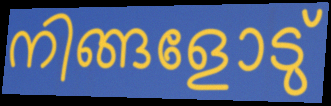
നിങ്ങളോടു്